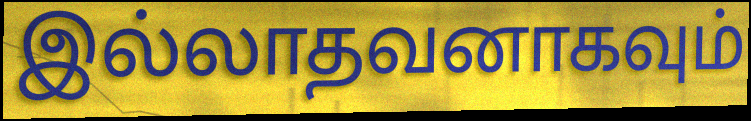
இல்லாதவனாகவும்